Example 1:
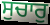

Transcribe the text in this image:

ਸੁਚਾਰੁ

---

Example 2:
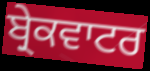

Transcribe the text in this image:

ਬ੍ਰੇਕਵਾਟਰ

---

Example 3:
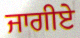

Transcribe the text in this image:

ਜਾਗੀਏ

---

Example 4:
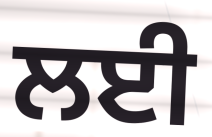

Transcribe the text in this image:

ਲਈ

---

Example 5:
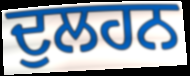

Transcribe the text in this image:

ਦੁਲਹਨ